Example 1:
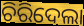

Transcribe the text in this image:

ଚିରିଦେଲା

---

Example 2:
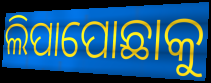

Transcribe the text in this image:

ଲିପାପୋଛାକୁ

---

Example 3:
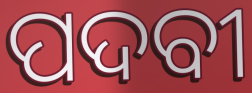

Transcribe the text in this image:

ପଦବୀ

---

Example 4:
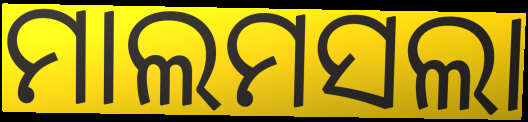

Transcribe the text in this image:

ମାଲମସଲା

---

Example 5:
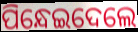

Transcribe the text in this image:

ପିନ୍ଧେଇଦେଲେ